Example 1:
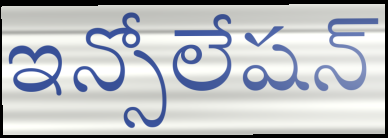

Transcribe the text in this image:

ఇన్సోలేషన్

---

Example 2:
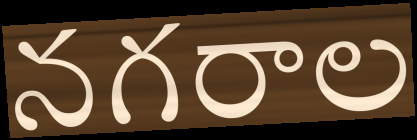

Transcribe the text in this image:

నగరాల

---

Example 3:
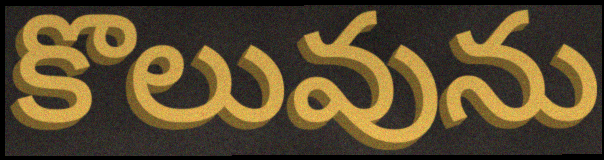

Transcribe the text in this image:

కొలువును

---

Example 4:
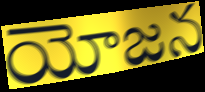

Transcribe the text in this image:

యోజన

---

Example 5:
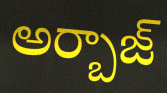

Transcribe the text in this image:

అర్బాజ్